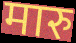
मारु